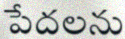
పేదలను